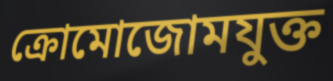
ক্রোমোজোমযুক্ত